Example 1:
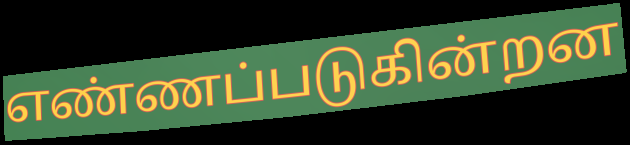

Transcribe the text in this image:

எண்ணப்படுகின்றன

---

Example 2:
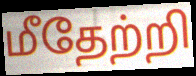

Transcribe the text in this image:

மீதேற்றி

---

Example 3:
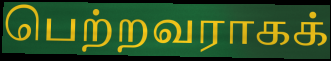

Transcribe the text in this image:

பெற்றவராகக்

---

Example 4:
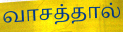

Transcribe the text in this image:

வாசத்தால்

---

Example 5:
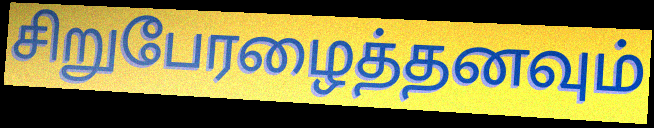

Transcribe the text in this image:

சிறுபேரழைத்தனவும்